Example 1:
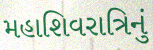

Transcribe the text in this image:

મહાશિવરાત્રિનું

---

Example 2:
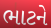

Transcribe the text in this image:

ભાટને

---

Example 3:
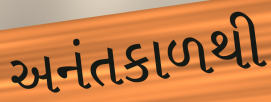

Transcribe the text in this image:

અનંતકાળથી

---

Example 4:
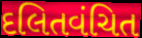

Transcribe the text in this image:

દલિતવંચિત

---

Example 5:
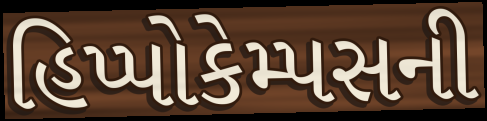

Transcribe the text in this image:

હિપ્પોકેમ્પસની